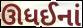
ઊધઈનાં